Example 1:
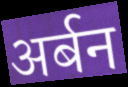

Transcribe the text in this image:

अर्बन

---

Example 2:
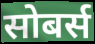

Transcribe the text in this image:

सोबर्स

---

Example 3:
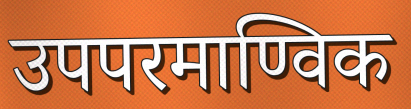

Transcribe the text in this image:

उपपरमाण्विक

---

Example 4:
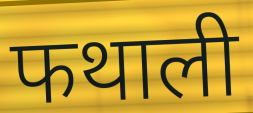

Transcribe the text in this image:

फथाली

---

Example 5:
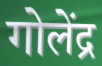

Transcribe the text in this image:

गोलेंद्र